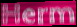
Herm